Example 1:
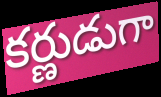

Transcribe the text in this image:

కర్ణుడుగా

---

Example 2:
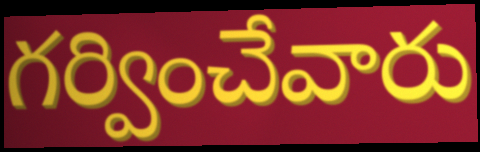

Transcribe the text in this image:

గర్వించేవారు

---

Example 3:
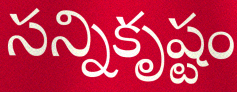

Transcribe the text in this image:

సన్నికృష్టం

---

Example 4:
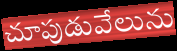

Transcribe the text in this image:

చూపుడువేలును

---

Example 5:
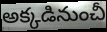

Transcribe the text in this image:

అక్కడినుంచీ